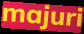
majuri